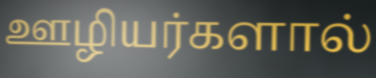
ஊழியர்களால்